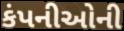
કંપનીઓની